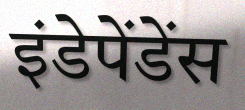
इंडेपेंडेंस